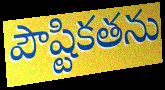
పౌష్టికతను